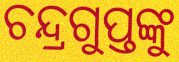
ଚନ୍ଦ୍ରଗୁପ୍ତଙ୍କୁ